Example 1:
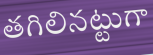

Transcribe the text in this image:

తగిలినట్టుగా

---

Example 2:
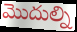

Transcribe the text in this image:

మొదుల్ని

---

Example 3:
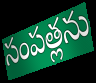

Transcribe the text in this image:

సంపత్లను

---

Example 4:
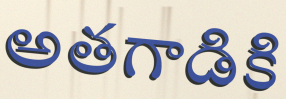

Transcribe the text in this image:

అతగాడికి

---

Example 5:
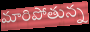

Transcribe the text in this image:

మారిపోతున్న